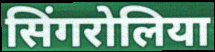
सिंगरोलिया